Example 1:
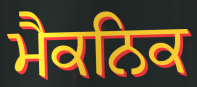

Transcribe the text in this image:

ਮੈਕਨਿਕ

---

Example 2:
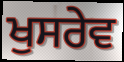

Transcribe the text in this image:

ਖੁਸਰੇਵ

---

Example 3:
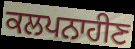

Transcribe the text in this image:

ਕਲਪਨਾਹੀਣ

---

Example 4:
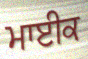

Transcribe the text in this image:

ਮਾਈਕ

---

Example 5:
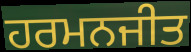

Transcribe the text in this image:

ਹਰਮਨਜੀਤ